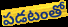
పడటంతో